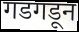
गडगडून